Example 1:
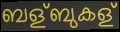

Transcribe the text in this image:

ബള്ബുകള്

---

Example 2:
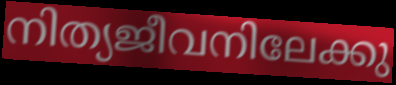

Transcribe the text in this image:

നിത്യജീവനിലേക്കു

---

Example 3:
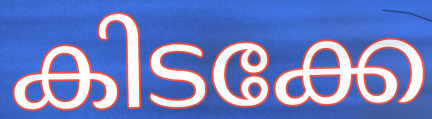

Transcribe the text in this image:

കിടക്കേ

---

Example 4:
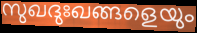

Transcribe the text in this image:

സുഖദുഃഖങ്ങളെയും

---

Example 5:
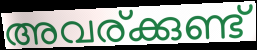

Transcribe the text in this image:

അവര്ക്കുണ്ട്